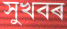
সুখবৰ